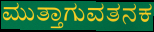
ಮುತ್ತಾಗುವತನಕ